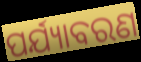
ପର୍ଯ୍ୟାବରଣ